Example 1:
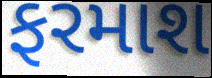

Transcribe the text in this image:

ફરમાશ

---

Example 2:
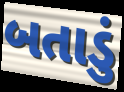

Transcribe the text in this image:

બતાડું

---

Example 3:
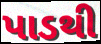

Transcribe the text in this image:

પાડથી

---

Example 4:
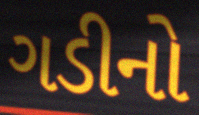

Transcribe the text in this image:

ગડીનો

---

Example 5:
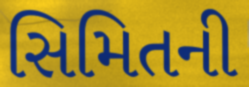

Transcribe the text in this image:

સિમિતની